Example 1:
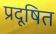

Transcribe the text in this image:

प्रदूषित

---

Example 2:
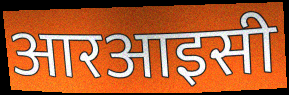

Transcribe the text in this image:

आरआइसी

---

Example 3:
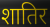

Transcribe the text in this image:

शातिर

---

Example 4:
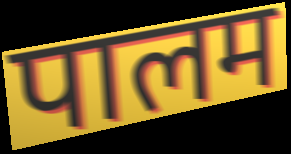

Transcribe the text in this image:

पालम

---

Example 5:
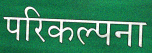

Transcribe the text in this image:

परिकल्पना